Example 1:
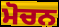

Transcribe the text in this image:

ਮੋਚਨ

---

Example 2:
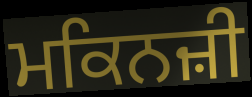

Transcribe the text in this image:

ਮਕਿਨਜ਼ੀ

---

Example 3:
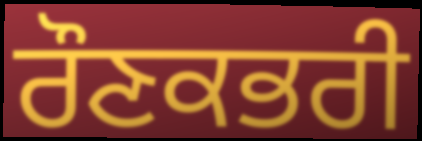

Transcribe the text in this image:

ਰੌਣਕਭਰੀ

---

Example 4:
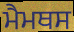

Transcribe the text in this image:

ਮੈਮਥਸ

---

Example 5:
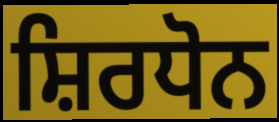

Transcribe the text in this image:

ਸ਼ਿਰਧੋਨ